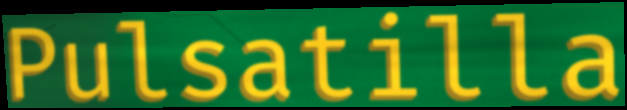
Pulsatilla